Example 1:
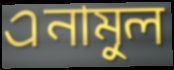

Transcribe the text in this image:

এনামুল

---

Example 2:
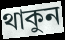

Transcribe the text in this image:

থাকুন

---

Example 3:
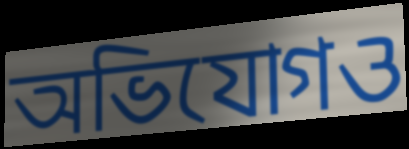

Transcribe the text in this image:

অভিযোগও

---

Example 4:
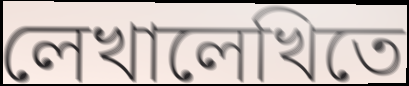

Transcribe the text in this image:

লেখালেখিতে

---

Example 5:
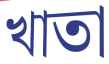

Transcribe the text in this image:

খাতা